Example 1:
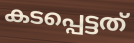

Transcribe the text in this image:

കടപ്പെട്ടത്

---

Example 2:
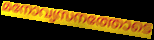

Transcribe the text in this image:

മനോവ്യസനത്തോടെ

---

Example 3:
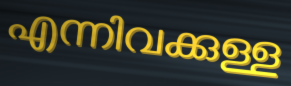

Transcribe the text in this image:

എന്നിവക്കുള്ള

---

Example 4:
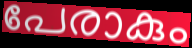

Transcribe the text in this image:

പേരാകും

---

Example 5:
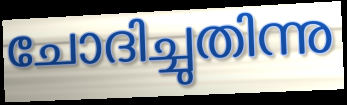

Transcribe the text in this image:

ചോദിച്ചുതിന്നു